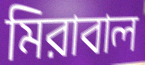
মিরাবাল